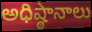
అధిష్ఠానాలు